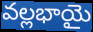
వల్లభాయై